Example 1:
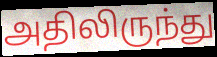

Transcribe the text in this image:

அதிலிருந்து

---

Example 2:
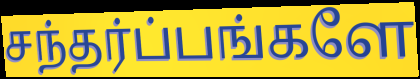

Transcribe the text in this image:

சந்தர்ப்பங்களே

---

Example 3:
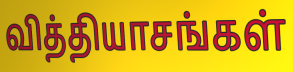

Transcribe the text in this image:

வித்தியாசங்கள்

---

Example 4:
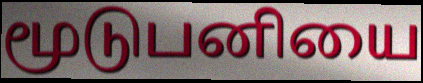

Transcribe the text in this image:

மூடுபனியை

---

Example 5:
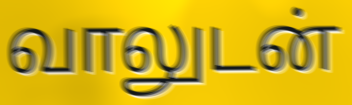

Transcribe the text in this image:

வாலுடன்